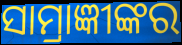
ସାମ୍ରାଜ୍ଞୀଙ୍କର